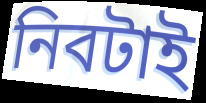
নিবটাই